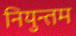
नियुन्तम